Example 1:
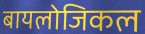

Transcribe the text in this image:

बायलोजिकल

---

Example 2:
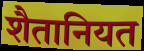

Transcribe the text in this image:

शैतानियत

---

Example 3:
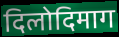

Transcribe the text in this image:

दिलोदिमाग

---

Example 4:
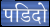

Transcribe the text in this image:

पडिदो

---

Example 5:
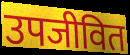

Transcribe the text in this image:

उपजीवित